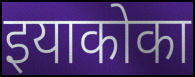
इयाकोका